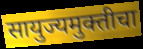
सायुज्यमुक्तीचा